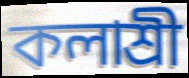
কলাশ্রী